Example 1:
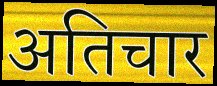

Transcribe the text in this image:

अतिचार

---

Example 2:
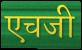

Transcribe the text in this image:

एचजी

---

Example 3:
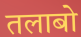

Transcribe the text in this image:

तलाबो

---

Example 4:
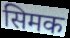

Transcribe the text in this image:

सिमक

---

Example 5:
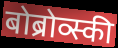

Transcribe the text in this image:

बोब्रोव्स्की